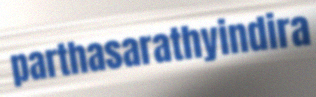
parthasarathyindira